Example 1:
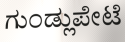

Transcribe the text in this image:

ಗುಂಡ್ಲುಪೇಟೆ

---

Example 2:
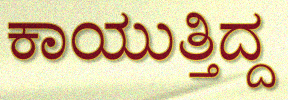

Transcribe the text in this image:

ಕಾಯುತ್ತಿದ್ದ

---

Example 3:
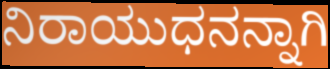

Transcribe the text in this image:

ನಿರಾಯುಧನನ್ನಾಗಿ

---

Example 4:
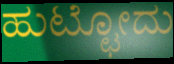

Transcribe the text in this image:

ಹುಟ್ಟೋದು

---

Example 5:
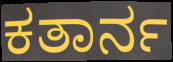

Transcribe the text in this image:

ಕತಾರ್ನ